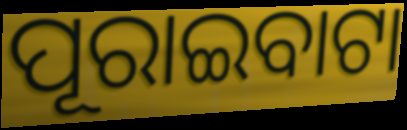
ପୂରାଇବାଟା